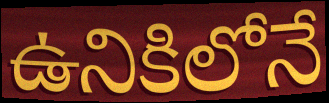
ఉనికిలోనే